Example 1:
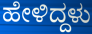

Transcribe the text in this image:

ಹೇಳಿದ್ದಳು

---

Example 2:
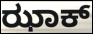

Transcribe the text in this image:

ಝಾಕ್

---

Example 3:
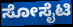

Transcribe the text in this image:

ಸೋಸೈಟಿ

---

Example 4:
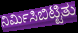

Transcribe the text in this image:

ನಿರ್ಮಿಸಿಬಿಟ್ಟಿತು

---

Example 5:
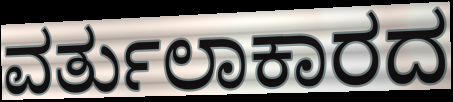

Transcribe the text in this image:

ವರ್ತುಲಾಕಾರದ